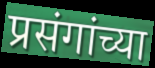
प्रसंगांच्या